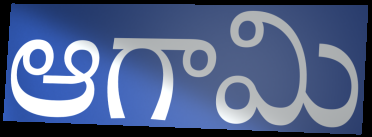
ఆగామి